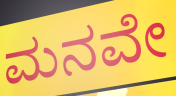
ಮನವೇ